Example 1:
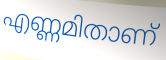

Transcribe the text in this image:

എണ്ണമിതാണ്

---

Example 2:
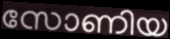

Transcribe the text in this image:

സോണിയ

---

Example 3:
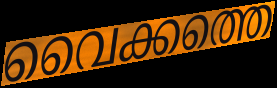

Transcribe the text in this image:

വൈക്കത്തെ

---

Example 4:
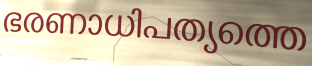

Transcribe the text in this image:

ഭരണാധിപത്യത്തെ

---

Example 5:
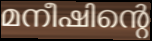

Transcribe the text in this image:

മനീഷിന്റെ